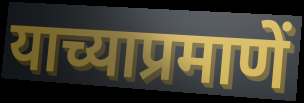
याच्याप्रमाणें